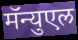
मॅन्युएल